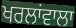
ਖਰਲਾਂਵਾਲਾ